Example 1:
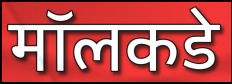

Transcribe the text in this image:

मॉलकडे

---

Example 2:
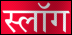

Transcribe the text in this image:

स्लॉग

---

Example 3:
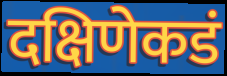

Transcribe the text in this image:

दक्षिणेकडं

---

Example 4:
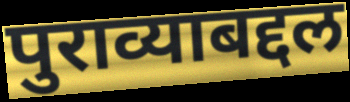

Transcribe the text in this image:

पुराव्याबद्दल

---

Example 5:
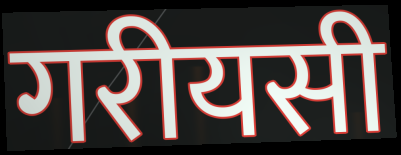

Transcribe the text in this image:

गरीयसी